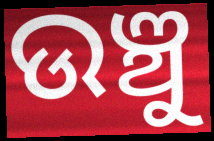
ଉଞ୍ଚୁ